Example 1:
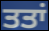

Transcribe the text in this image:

ਤਤਾਂ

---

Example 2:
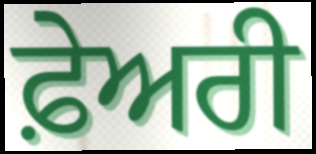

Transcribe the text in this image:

ਫ਼ੇਅਰੀ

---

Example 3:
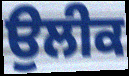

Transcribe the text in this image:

ਉਲੀਕ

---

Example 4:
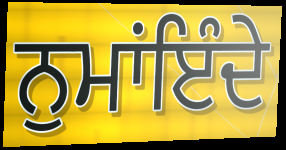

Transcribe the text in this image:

ਨੁਮਾਂਇੰਦੇ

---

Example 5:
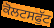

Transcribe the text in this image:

ਕੋਲਟਸਫੁੱਟ